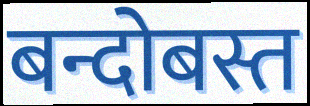
बन्दोबस्त